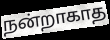
நன்றாகாத